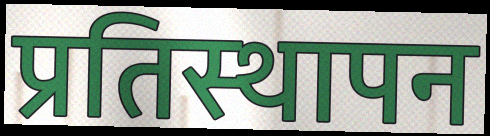
प्रतिस्थापन